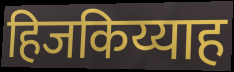
हिजकिय्याह